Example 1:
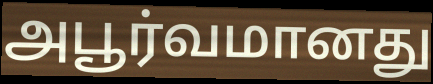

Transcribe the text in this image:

அபூர்வமானது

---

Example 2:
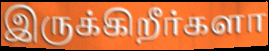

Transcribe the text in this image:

இருக்கிறீர்களா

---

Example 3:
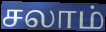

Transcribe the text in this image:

சலாம்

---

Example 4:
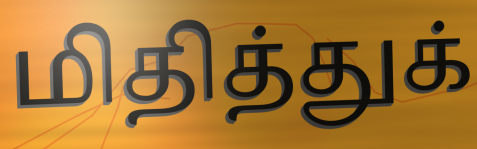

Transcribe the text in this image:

மிதித்துக்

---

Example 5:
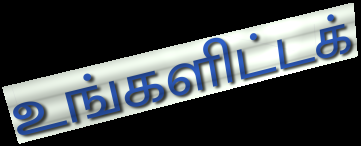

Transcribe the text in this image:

உங்களிட்டக்